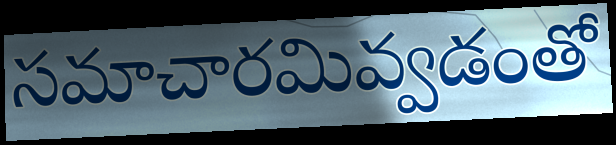
సమాచారమివ్వడంతో